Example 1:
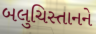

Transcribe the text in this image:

બલુચિસ્તાનને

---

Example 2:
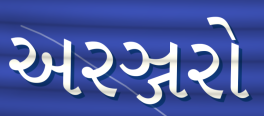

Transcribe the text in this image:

અરઞ્જરો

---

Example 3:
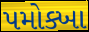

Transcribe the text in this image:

પમોક્ખા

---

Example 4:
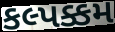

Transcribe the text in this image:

કલ્પક્કમ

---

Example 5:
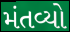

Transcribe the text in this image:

મંતવ્યો